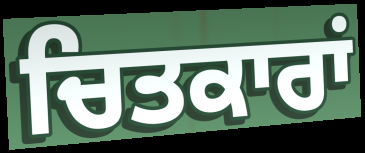
ਚਿਤਕਾਰਾਂ